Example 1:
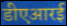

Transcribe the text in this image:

डीएआरई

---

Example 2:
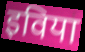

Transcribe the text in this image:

इविया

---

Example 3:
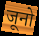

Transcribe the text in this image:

जूनो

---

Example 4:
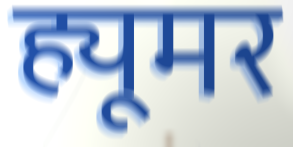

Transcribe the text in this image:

ह्यूमर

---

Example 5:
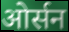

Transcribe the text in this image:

ओर्सन